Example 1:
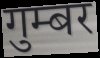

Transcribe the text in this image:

गुम्बर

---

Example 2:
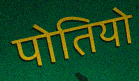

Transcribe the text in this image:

पोतियो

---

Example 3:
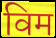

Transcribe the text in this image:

विम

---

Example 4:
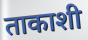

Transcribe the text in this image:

ताकाशी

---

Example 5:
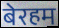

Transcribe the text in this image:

बेरहम